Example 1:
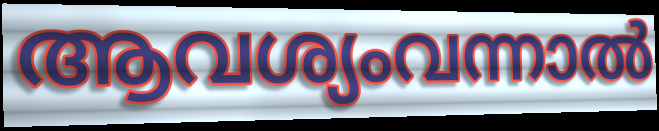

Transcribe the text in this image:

ആവശ്യംവന്നാൽ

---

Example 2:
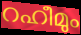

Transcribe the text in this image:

റഹീമും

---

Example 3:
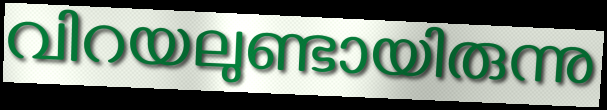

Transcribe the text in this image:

വിറയലുണ്ടായിരുന്നു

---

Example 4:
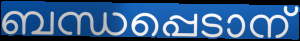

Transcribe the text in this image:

ബന്ധപ്പെടാന്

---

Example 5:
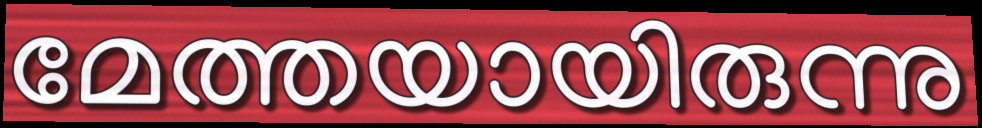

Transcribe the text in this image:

മേത്തയായിരുന്നു